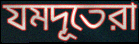
যমদূতেরা